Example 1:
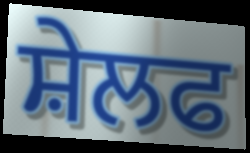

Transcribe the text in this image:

ਸ਼ੇਲਫ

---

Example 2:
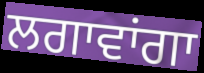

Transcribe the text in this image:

ਲਗਾਵਾਂਗਾ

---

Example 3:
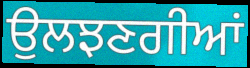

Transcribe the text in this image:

ਉਲਝਣਗੀਆਂ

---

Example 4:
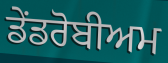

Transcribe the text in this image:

ਡੇਂਡਰੋਬੀਅਮ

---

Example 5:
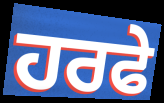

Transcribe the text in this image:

ਹਰਫੇ